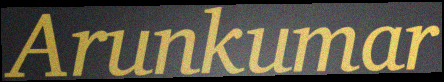
Arunkumar